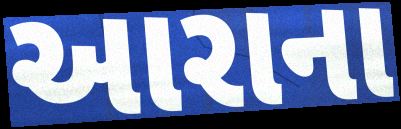
આરાના